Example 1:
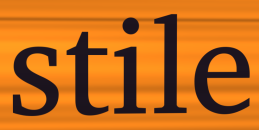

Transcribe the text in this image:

stile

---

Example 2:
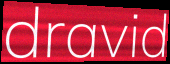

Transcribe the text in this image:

dravid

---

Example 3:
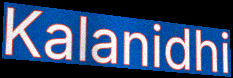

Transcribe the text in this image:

Kalanidhi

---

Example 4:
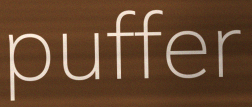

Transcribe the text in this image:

puffer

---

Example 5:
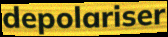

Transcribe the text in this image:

depolariser